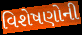
વિશેષણોની